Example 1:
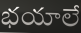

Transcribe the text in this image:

భయాలే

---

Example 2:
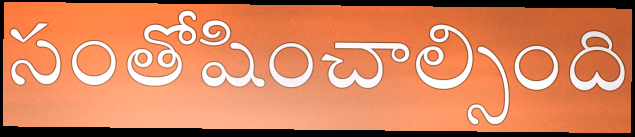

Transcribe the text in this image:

సంతోషించాల్సింది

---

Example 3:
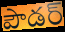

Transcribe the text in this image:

పౌడర్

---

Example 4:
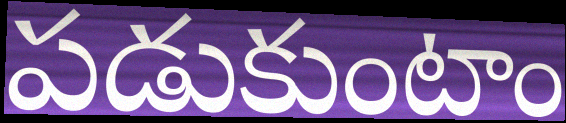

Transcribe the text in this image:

పడుకుంటాం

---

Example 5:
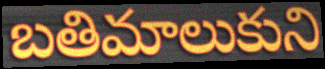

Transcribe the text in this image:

బతిమాలుకుని